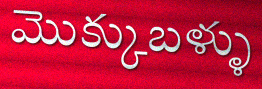
మొక్కుబళ్ళు